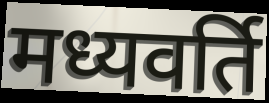
मध्यवर्ति